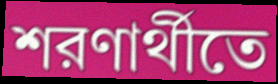
শরণার্থীতে